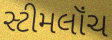
સ્ટીમલૉંચ